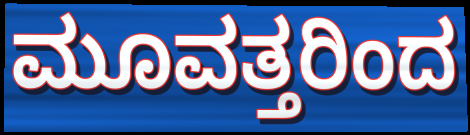
ಮೂವತ್ತರಿಂದ